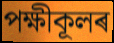
পক্ষীকূলৰ